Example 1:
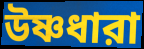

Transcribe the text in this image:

উষ্ণধারা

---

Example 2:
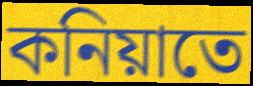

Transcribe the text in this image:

কনিয়াতে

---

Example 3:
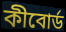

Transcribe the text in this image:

কীবোর্ড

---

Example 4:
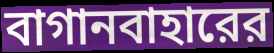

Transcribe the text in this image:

বাগানবাহারের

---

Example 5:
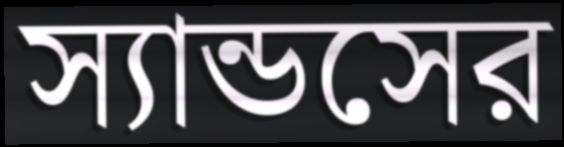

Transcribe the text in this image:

স্যান্ডসের